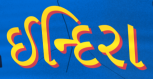
ઈન્દિરા